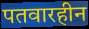
पतवारहीन